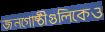
জনগোষ্ঠীগুলিকেও